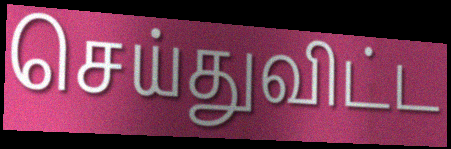
செய்துவிட்ட